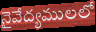
నైవేద్యములలో